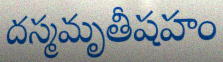
దస్మమృతీషహం